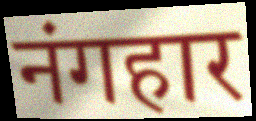
नंगहार